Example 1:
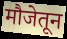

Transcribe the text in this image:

मौजेतून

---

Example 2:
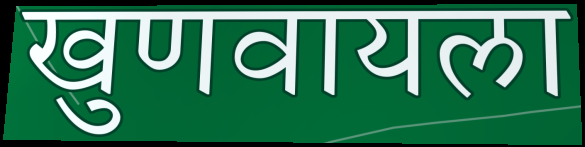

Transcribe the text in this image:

खुणवायला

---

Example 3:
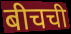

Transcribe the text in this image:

बीचची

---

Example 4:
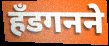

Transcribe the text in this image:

हँडगनने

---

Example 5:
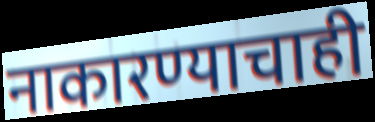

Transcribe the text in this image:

नाकारण्याचाही